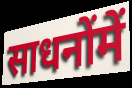
साधनोंमें